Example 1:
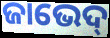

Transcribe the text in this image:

ଜାଭେଦ୍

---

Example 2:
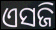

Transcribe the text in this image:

ଏସଜି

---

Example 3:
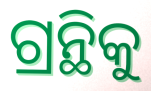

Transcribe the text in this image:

ଗ୍ରନ୍ଥିକୁ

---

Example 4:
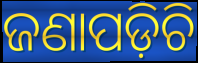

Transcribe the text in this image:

ଜଣାପଡ଼ିଚି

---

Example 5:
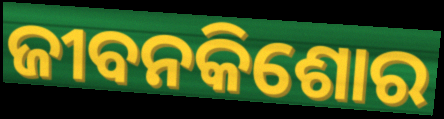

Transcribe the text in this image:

ଜୀବନକିଶୋର